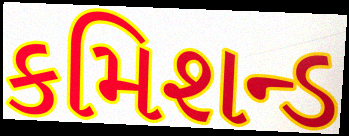
કમિશન્ડ